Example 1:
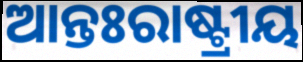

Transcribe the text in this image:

ଆନ୍ତଃରାଷ୍ଟ୍ରୀୟ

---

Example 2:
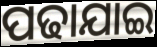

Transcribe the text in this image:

ପଢାଯାଇ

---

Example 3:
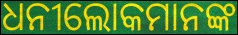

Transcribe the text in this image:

ଧନୀଲୋକମାନଙ୍କ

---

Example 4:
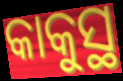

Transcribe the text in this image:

କାକୁସ୍ଥ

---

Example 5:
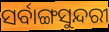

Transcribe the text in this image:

ସର୍ବାଙ୍ଗସୁନ୍ଦରୀ